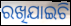
ରଖିଯାଇଚି